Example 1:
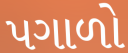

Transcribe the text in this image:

પગાળો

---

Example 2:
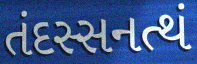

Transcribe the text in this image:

તંદસ્સનત્થં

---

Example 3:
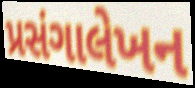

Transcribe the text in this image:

પ્રસંગાલેખન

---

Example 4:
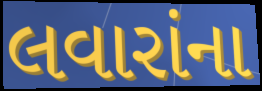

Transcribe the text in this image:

લવારાંના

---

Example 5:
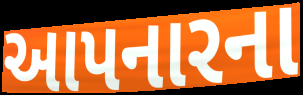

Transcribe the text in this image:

આપનારના